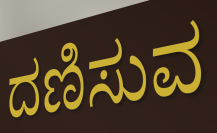
ದಣಿಸುವ